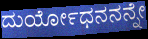
ದುರ್ಯೋಧನನನ್ನೇ